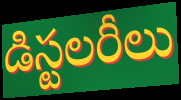
డిస్టలరీలు